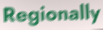
Regionally